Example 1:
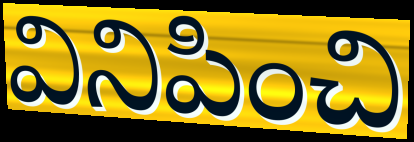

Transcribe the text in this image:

వినిపించి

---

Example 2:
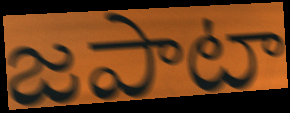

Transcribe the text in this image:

జపాటా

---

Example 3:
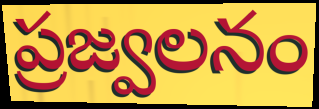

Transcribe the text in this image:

ప్రజ్వలనం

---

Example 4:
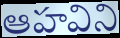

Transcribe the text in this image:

ఆహవిని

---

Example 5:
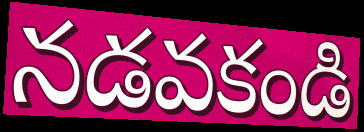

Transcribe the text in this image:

నడవకండి